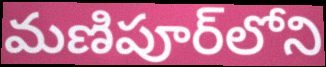
మణిపూర్‌లోని